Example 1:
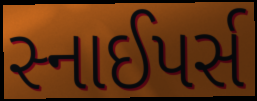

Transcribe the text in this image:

સ્નાઈપર્સ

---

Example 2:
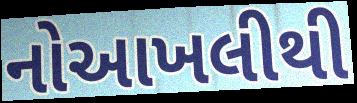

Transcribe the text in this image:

નોઆખલીથી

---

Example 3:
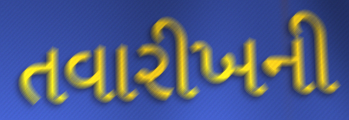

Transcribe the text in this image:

તવારીખની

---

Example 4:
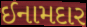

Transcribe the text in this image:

ઈનામદાર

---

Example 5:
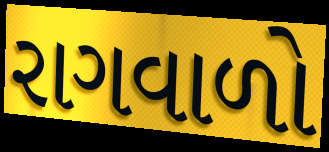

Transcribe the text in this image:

રાગવાળો